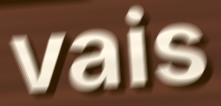
vais